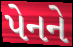
પેનને